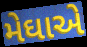
મેઘાએ